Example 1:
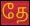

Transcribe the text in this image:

தே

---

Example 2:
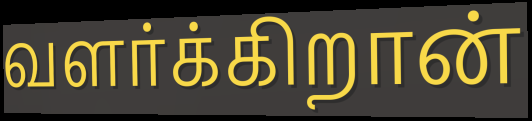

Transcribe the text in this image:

வளர்க்கிறான்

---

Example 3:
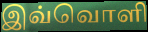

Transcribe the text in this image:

இவ்வொளி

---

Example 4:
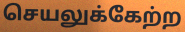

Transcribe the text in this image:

செயலுக்கேற்ற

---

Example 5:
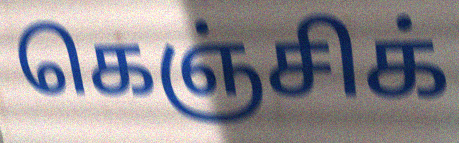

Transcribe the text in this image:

கெஞ்சிக்